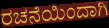
ರಚನೆಯಿಂದಾಗಿ